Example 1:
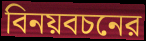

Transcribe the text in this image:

বিনয়বচনের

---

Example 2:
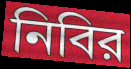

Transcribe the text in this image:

নিবির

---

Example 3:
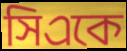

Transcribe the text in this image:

সিএকে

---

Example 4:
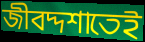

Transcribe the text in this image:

জীবদ্দশাতেই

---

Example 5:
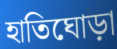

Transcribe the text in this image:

হাতিঘোড়া